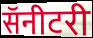
सॅनीटरी